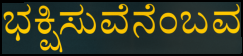
ಭಕ್ಷಿಸುವೆನೆಂಬವ